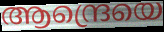
ആന്ദ്രെയെ